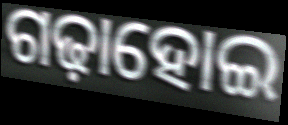
ଗଢ଼ାହୋଇ